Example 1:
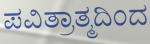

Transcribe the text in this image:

ಪವಿತ್ರಾತ್ಮದಿಂದ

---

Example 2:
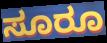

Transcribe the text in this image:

ಸೂರೂ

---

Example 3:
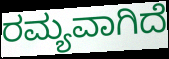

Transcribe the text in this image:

ರಮ್ಯವಾಗಿದೆ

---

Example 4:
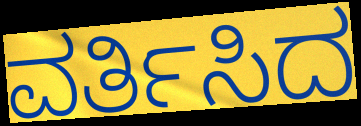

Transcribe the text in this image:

ವರ್ತಿಸಿದ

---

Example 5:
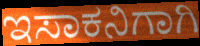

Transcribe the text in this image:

ಇಸಾಕನಿಗಾಗಿ